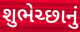
શુભેચ્છાનું